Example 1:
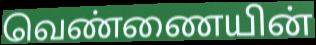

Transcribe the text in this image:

வெண்ணையின்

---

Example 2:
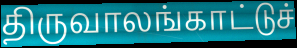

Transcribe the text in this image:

திருவாலங்காட்டுச்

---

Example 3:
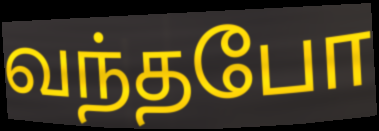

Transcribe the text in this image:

வந்தபோ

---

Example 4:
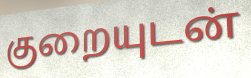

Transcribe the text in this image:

குறையுடன்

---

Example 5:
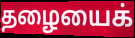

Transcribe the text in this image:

தழையைக்